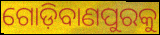
ଗୋଡ଼ିବାଣପୁରକୁ